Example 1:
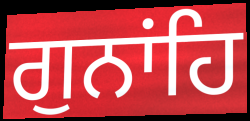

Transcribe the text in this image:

ਗੁਨਾਂਹਿ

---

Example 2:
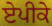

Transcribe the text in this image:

ਏਪੀਕੇ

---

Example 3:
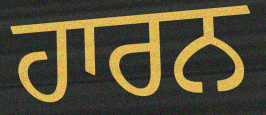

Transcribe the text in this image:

ਹਾਰਨ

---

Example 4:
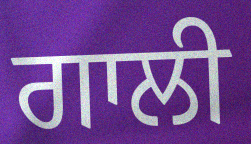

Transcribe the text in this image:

ਗਾਲੀ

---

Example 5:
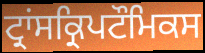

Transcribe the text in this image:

ਟ੍ਰਾਂਸਕ੍ਰਿਪਟੌਮਿਕਸ